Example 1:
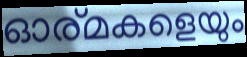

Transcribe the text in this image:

ഓര്മകളെയും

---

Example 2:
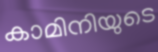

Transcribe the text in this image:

കാമിനിയുടെ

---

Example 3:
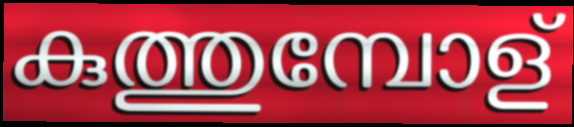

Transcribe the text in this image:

കുത്തുമ്പോള്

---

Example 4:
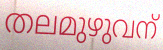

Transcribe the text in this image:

തലമുഴുവന്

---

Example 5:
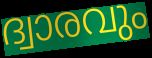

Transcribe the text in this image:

ദ്വാരവും